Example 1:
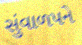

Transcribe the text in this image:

સુંવાળપને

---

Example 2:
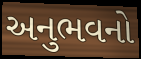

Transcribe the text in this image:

અનુભવનો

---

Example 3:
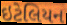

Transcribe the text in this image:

ઇટેલિયન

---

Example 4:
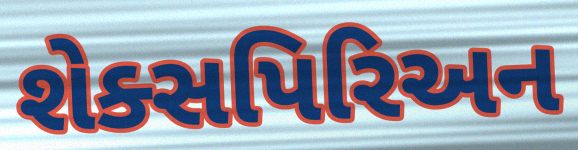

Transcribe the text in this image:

શેક્સપિરિઅન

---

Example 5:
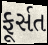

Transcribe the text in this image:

ફૂર્સત